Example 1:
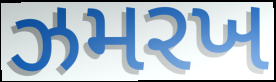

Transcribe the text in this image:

ઝમરખ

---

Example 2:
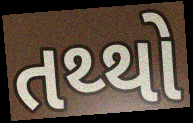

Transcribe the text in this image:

તથ્થો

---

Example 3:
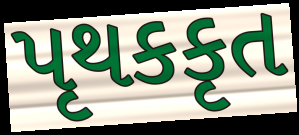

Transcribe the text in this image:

પૃથકકૃત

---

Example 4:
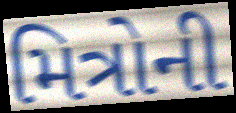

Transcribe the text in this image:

મિત્રોની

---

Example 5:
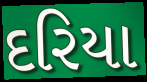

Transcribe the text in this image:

દરિયા